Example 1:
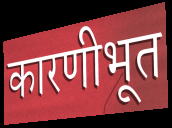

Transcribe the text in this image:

कारणीभूत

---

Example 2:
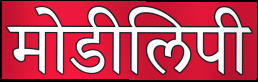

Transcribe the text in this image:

मोडीलिपी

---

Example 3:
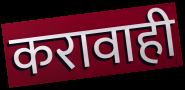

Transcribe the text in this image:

करावाही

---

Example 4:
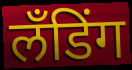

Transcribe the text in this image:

लँडिंग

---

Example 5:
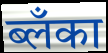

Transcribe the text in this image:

ब्लँका